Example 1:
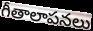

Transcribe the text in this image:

గీతాలాపనలు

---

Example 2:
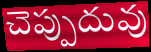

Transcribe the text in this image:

చెప్పుదువు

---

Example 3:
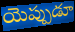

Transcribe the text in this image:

యెప్పుడూ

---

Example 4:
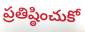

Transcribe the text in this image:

ప్రతిష్ఠించుకో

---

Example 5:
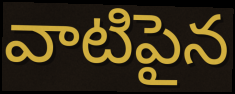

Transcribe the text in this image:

వాటిపైన